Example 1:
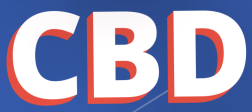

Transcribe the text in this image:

CBD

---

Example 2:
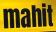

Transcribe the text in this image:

mahit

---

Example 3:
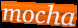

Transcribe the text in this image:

mocha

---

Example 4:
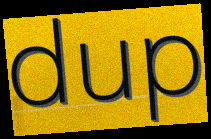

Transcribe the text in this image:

dup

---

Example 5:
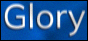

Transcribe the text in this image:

Glory